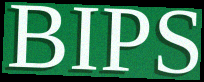
BIPS